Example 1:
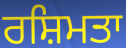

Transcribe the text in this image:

ਰਸ਼ਿਮਤਾ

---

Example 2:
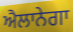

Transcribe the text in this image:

ਐਲਾਨੇਗਾ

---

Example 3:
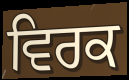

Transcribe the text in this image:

ਵਿਰਕ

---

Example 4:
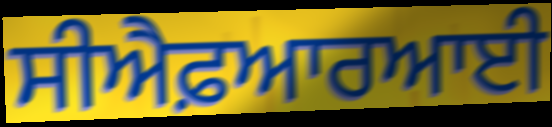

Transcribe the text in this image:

ਸੀਐਫ਼ਆਰਆਈ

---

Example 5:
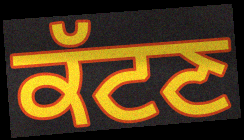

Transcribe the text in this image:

ਕੱਟਣ